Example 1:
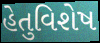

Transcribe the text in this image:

હેતુવિશેષ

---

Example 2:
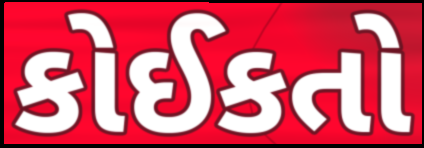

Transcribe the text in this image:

કોઈકતો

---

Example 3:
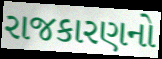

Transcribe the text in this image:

રાજકારણનો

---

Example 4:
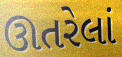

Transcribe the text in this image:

ઊતરેલાં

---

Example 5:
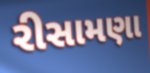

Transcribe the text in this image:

રીસામણા